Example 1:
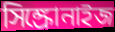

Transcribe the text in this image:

সিঙ্ক্রোনাইজ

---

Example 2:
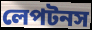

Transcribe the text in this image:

লেপটনস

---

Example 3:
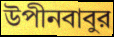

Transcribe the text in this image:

উপীনবাবুর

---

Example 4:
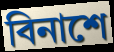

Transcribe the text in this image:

বিনাশে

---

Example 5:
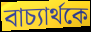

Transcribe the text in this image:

বাচ্যার্থকে